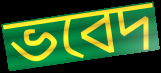
ভবেদ